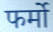
फर्मो